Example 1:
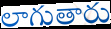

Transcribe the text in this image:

లాగుతారు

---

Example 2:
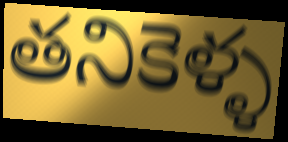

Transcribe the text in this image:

తనికెళ్ళ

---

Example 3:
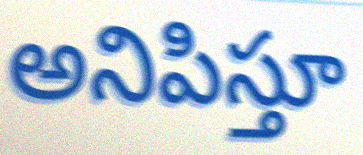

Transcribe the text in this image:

అనిపిస్తూ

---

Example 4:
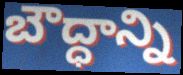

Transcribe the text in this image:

బౌద్ధాన్ని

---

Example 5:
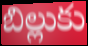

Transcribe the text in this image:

బిల్లుకు